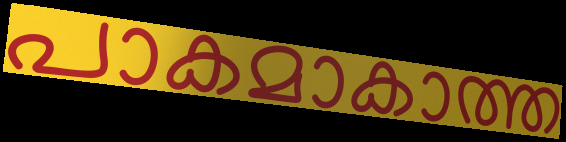
പാകമാകാത്ത